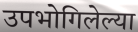
उपभोगिलेल्या